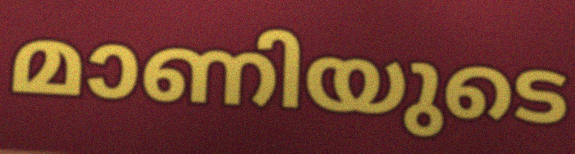
മാണിയുടെ